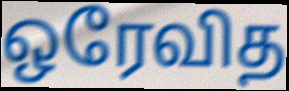
ஒரேவித